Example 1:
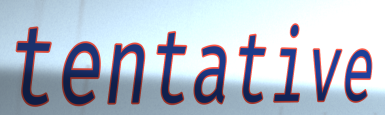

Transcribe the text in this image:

tentative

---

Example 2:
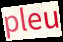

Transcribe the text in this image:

pleu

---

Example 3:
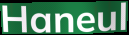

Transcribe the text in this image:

Haneul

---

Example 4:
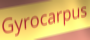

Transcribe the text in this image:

Gyrocarpus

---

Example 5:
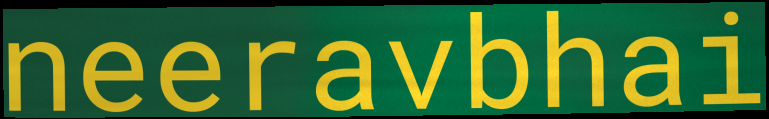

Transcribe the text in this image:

neeravbhai